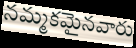
నమ్మకమైనవారు